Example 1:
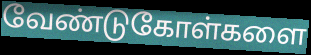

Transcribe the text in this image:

வேண்டுகோள்களை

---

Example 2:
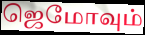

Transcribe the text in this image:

ஜெமோவும்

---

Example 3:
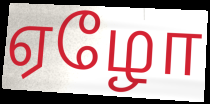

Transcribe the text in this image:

ஏழோ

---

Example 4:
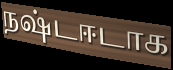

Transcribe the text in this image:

நஷ்டஈடாக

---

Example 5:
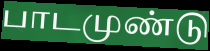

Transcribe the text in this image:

பாடமுண்டு